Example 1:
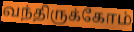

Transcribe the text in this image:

வந்திருக்கோம்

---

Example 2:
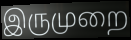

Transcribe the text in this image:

இருமுறை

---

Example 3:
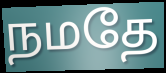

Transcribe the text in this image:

நமதே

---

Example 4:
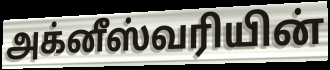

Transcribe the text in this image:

அக்னீஸ்வரியின்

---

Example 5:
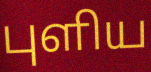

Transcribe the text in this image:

புளிய